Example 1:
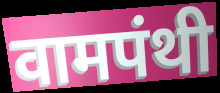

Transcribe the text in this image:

वामपंथी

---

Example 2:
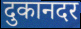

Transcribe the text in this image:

दुकानदर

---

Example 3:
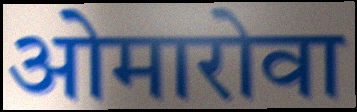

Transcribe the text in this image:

ओमारोवा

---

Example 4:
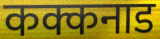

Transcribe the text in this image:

कक्कनाड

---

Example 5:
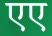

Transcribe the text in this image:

एए